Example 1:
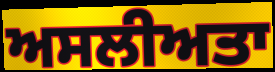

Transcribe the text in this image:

ਅਸਲੀਅਤਾ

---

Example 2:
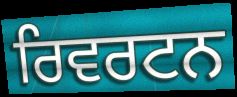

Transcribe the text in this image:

ਰਿਵਰਟਨ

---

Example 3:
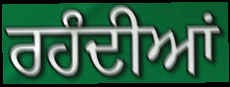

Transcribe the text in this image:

ਰਹੰਦੀਆਂ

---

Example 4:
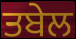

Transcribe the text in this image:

ਤਬੇਲ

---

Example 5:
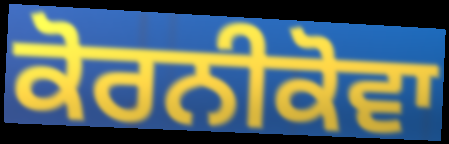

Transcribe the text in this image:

ਕੋਰਨੀਕੋਵਾ